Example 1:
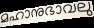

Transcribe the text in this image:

മഹാനുഭാവലു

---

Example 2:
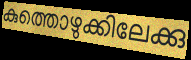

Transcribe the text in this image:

കുത്തൊഴുക്കിലേക്കു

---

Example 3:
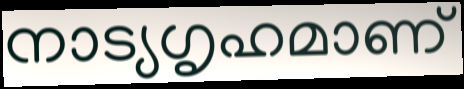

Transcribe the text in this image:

നാട്യഗൃഹമാണ്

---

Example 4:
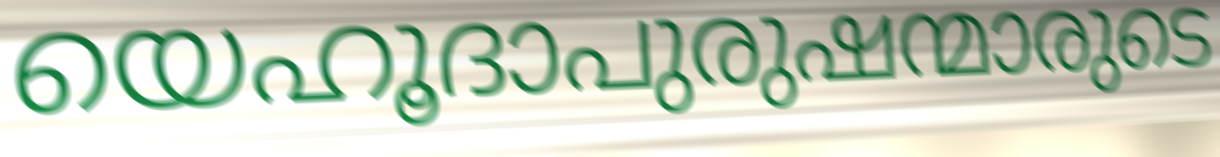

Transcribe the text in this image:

യെഹൂദാപുരുഷന്മാരുടെ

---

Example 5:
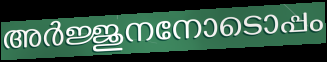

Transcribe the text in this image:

അർജ്ജുനനോടൊപ്പം